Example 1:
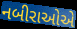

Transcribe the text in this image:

નબીરાઓએ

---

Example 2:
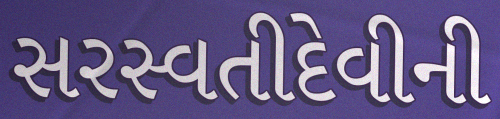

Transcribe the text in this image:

સરસ્વતીદેવીની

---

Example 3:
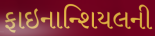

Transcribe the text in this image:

ફાઇનાન્શિયલની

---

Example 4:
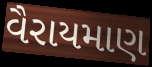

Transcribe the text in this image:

વૈરાયમાણ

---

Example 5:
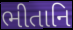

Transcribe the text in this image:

ભીતાનિ